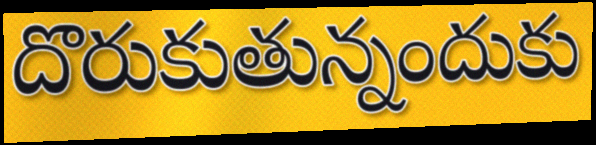
దొరుకుతున్నందుకు